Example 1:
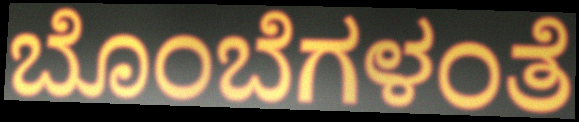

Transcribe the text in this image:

ಬೊಂಬೆಗಳಂತೆ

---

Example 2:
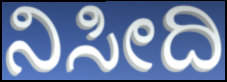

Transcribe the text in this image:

ನಿಸೀದಿ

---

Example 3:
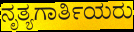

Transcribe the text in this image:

ನೃತ್ಯಗಾರ್ತಿಯರು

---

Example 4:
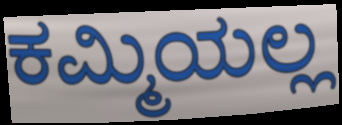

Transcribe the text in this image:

ಕಮ್ಮಿಯಲ್ಲ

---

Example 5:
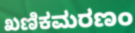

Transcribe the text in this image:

ಖಣಿಕಮರಣಂ